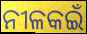
ନୀଳକଇଁ